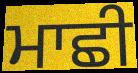
ਮਾਛੀ